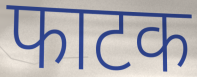
फाटक